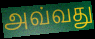
அவ்வது